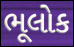
ભૂલોક